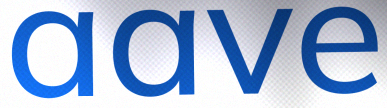
aave